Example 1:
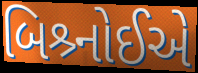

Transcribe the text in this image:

બિશ્ર્નોઈએ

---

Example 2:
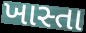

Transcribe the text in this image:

ખાસ્તા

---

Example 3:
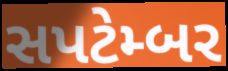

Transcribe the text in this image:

સપટેમ્બર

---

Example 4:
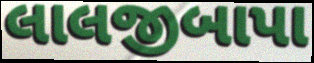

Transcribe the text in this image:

લાલજીબાપા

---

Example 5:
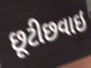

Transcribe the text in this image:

છૂટીછવાઇ